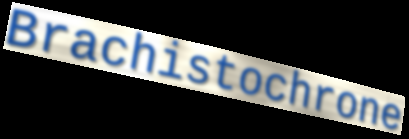
Brachistochrone